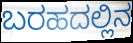
ಬರಹದಲ್ಲಿನ